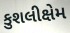
કુશલીક્ષેમ